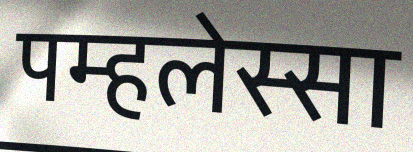
पम्हलेस्सा